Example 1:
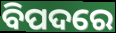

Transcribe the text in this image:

ବିପଦରେ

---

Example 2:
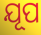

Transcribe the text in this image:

ଯୂପ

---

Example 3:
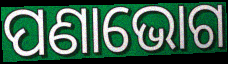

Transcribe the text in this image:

ପଣାଭୋଗ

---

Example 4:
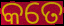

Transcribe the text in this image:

କତେ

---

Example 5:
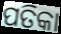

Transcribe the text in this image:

ପତିକା